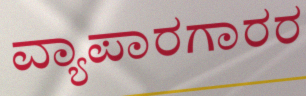
ವ್ಯಾಪಾರಗಾರರ